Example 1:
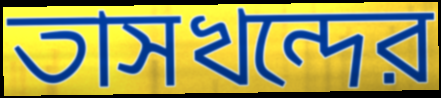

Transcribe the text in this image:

তাসখন্দের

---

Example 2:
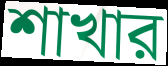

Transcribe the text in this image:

শাখার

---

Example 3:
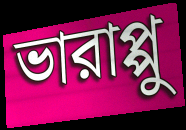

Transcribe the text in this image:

ভারাপ্পু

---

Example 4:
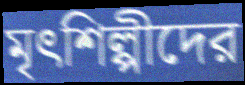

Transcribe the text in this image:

মৃৎশিল্পীদের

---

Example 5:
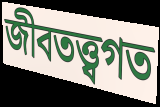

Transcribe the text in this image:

জীবতত্ত্বগত